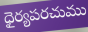
ధైర్యపరచుము